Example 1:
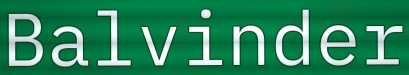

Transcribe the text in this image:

Balvinder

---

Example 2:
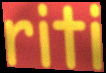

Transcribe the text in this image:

riti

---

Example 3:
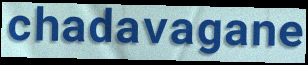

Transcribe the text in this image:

chadavagane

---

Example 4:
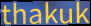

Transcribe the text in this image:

thakuk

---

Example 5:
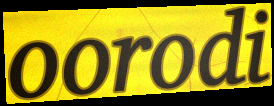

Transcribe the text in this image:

oorodi